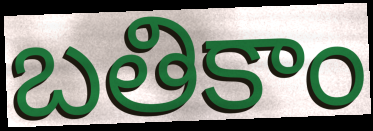
బతికాం